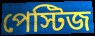
পেস্টিজ